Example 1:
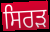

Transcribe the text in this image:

ਸਿਰਡ਼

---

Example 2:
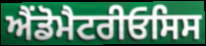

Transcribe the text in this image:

ਐਂਡੋਮੈਟਰੀਓਸਿਸ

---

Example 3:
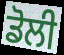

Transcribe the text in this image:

ਡੋਲੀ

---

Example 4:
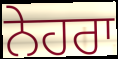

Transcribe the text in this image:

ਨੇਹਰਾ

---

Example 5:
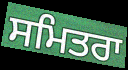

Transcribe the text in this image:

ਸਮਿਤਰਾ